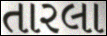
તારલા